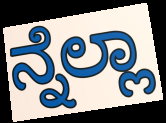
ನ್ನೆಲ್ಲಾ